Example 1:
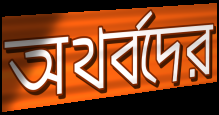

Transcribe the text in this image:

অথর্বদের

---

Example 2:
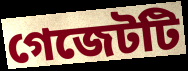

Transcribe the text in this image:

গেজেটটি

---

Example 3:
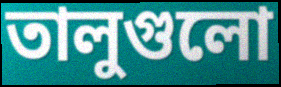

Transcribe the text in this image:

তালুগুলো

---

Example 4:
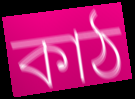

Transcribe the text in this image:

কাঠ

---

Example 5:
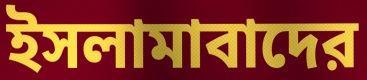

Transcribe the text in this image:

ইসলামাবাদের